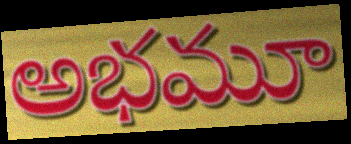
అభమూ